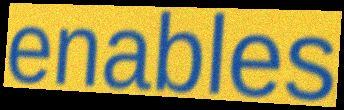
enables